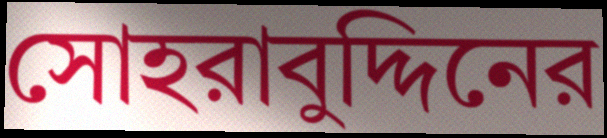
সোহরাবুদ্দিনের